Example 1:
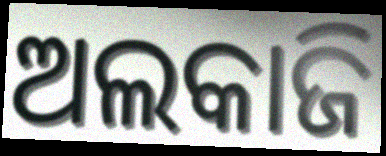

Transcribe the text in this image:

ଅଲକାଜି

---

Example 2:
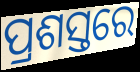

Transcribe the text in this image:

ପ୍ରଶସ୍ତରେ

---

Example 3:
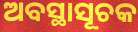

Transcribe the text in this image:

ଅବସ୍ଥାସୂଚକ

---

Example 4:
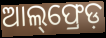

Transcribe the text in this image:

ଆଲ୍‌ଫ୍ରେଡ଼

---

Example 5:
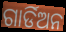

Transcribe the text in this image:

ଗାର୍ଡିଅନ